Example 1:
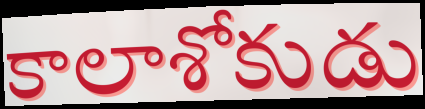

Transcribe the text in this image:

కాలాశోకుడు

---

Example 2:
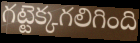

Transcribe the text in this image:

గట్టెక్కగలిగింది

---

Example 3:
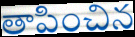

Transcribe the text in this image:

తాపించిన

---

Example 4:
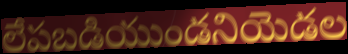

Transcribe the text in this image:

లేపబడియుండనియెడల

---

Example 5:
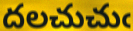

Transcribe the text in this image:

దలచుచుఁ